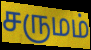
சருமம்